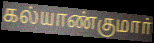
கல்யாண்குமார்